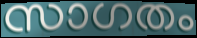
സാഗതം